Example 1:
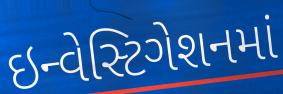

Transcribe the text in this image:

ઇન્વેસ્ટિગેશનમાં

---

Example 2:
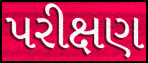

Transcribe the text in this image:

પરીક્ષણ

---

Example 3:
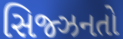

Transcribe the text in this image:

સિજ્ઝનતો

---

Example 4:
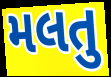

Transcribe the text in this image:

મલતુ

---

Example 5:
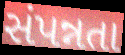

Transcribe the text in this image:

સંપન્નતા